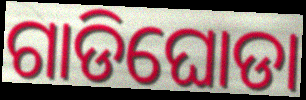
ଗାଡିଘୋଡା